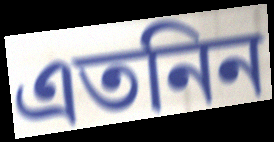
এতনিন